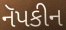
નૅપકીન